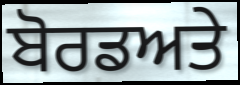
ਬੋਰਡਅਤੇ